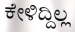
ಕೇಳಿದ್ದಿಲ್ಲ